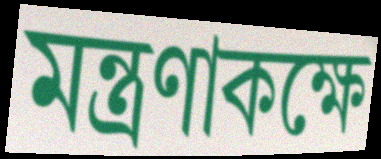
মন্ত্রণাকক্ষে